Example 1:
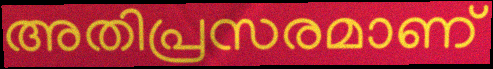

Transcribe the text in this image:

അതിപ്രസരമാണ്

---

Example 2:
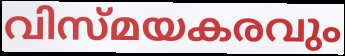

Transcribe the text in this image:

വിസ്മയകരവും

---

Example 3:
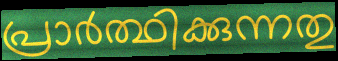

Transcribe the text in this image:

പ്രാർത്ഥിക്കുന്നതു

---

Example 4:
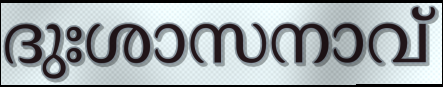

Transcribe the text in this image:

ദുഃശാസനാവ്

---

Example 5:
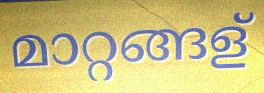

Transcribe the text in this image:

മാറ്റങ്ങള്